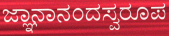
ಜ್ಞಾನಾನಂದಸ್ವರೂಪ